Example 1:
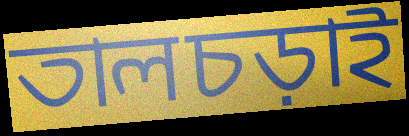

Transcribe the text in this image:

তালচড়াই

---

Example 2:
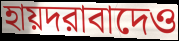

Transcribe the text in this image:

হায়দরাবাদেও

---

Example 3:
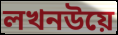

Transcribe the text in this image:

লখনউয়ে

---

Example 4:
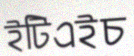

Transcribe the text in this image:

ইটিএইচ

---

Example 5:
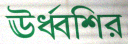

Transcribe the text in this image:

ঊর্ধ্বশির